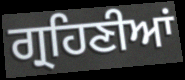
ਗ੍ਰਹਿਣੀਆਂ